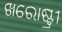
ଖରୋଷ୍ଟ୍ରୀ